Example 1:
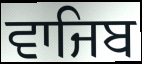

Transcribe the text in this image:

ਵਾਜਿਬ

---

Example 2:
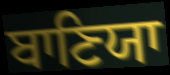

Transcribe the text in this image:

ਬਾਣਿਯਾ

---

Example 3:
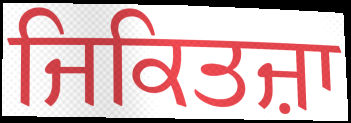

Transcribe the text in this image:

ਜਿਕਿਤਜ਼ਾ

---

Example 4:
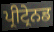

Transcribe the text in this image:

ਪ੍ਰੀਟ੍ਰੇਨਡ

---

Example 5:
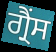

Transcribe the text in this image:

ਗ੍ਰੈਂਸ